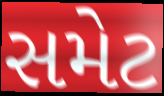
સમેટ